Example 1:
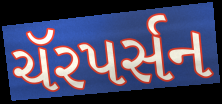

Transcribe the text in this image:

ચૅરપર્સન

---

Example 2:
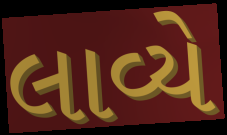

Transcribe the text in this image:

લાવ્યે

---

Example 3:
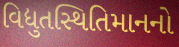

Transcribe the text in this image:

વિદ્યુતસ્થિતિમાનનો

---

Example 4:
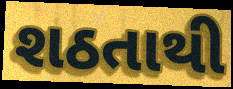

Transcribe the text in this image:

શઠતાથી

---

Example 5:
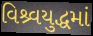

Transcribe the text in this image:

વિશ્ર્વયુદ્ધમાં